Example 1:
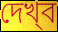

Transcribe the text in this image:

দেখ্‌ব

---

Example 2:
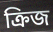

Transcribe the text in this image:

ক্রিজ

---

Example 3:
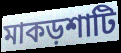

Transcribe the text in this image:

মাকড়শাটি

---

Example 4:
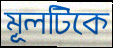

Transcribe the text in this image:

মূলটিকে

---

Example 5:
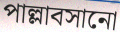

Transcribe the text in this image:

পাল্লাবসানো